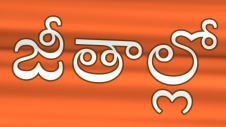
జీతాల్లో